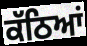
ਕੱਠਿਆਂ